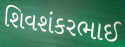
શિવશંકરભાઈ